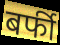
बर्फी